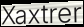
Xaxtrer